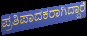
ಪ್ರತಿಪಾದಕರಾಗಿದ್ದಾರೆ